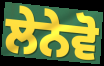
ਲੇਨੇਵੋ